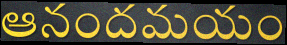
ఆనందమయం